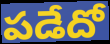
పడేదో